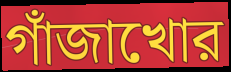
গাঁজাখোর